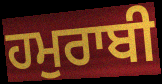
ਹਮੁਰਾਬੀ